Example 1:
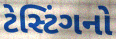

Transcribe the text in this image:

ટેસ્ટિંગનો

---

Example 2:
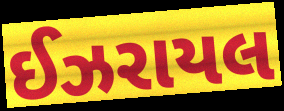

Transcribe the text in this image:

ઈઝરાયલ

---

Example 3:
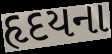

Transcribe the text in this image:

હૃદયના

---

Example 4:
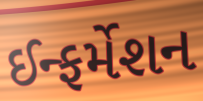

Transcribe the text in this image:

ઈન્ફર્મેશન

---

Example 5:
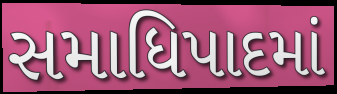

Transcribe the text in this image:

સમાધિપાદમાં